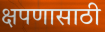
क्षपणासाठी